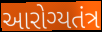
આરોગ્યતંત્ર